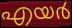
എയർ